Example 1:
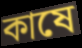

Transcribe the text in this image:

কাষে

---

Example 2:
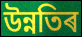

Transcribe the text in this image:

উন্নতিৰ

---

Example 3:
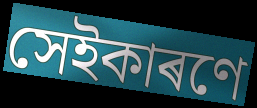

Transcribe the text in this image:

সেইকাৰণে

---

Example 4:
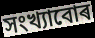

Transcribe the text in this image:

সংখ্যাবোৰ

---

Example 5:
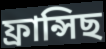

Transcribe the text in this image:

ফ্ৰান্সিছ